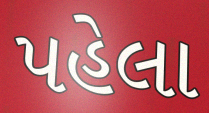
પહેલા